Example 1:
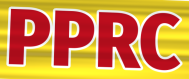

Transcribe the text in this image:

PPRC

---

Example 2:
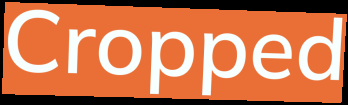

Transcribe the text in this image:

Cropped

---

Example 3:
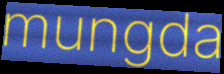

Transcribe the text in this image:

mungda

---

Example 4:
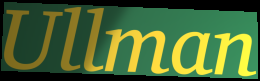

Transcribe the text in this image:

Ullman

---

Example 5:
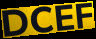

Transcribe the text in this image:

DCEF